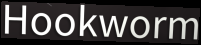
Hookworm